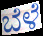
ಬೆಳೆ